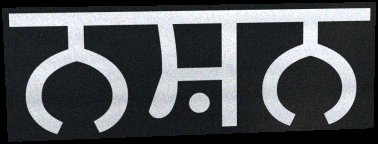
ਨਸ਼ਨ